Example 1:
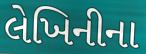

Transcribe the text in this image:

લેખિનીના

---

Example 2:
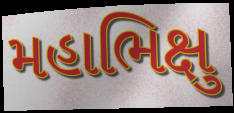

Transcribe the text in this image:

મહાભિક્ષુ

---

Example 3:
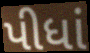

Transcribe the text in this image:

પીધાં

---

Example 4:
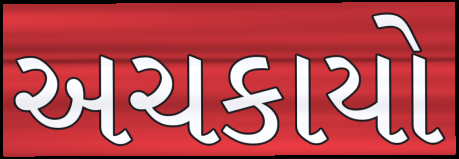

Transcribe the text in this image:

અચકાયો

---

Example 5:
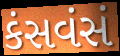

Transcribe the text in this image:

કંસવંસં